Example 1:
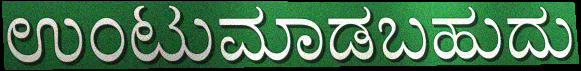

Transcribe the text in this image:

ಉಂಟುಮಾಡಬಹುದು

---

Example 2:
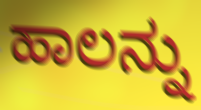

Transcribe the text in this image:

ಹಾಲನ್ನು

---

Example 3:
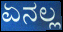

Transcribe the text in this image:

ಏನಲ್ಲ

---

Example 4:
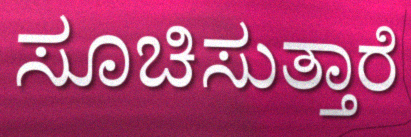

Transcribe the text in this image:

ಸೂಚಿಸುತ್ತಾರೆ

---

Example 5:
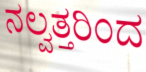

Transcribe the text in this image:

ನಲ್ವತ್ತರಿಂದ